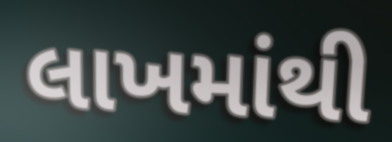
લાખમાંથી